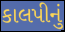
કાલપીનું